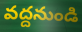
వద్దనుండి